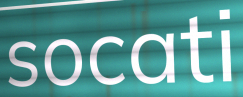
socati